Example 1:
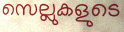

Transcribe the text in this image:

സെല്ലുകളുടെ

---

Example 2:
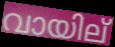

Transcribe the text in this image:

വായില്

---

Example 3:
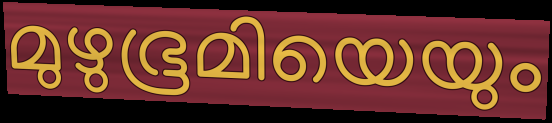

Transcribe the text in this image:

മുഴുഭൂമിയെയും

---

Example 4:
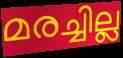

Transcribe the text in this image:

മരച്ചില്ല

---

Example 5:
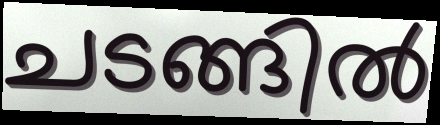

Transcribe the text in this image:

ചടങ്ങിൽ